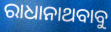
ରାଧାନାଥବାବୁ